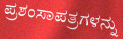
ಪ್ರಶಂಸಾಪತ್ರಗಳನ್ನು